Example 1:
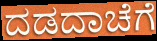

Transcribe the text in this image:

ದಡದಾಚೆಗೆ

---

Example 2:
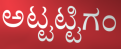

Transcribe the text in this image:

ಅಟ್ಟಟ್ಟಿಗಂ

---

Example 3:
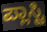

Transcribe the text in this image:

ಪ್ಲಾಸ್ಟಿ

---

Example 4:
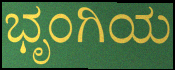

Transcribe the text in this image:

ಭೃಂಗಿಯ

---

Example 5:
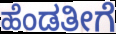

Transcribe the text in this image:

ಹೆಂಡತೀಗೆ